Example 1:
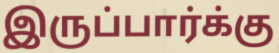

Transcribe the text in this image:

இருப்பார்க்கு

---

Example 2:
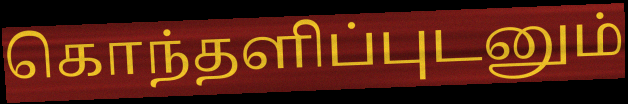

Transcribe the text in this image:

கொந்தளிப்புடனும்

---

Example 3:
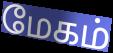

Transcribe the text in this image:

மேகம்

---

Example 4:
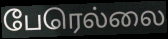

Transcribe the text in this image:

பேரெல்லை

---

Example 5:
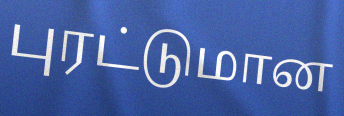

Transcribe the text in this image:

புரட்டுமான